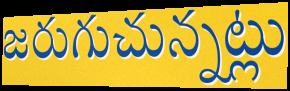
జరుగుచున్నట్లు